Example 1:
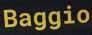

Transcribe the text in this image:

Baggio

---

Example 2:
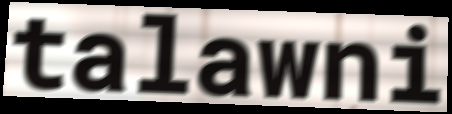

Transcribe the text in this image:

talawni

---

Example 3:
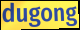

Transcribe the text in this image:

dugong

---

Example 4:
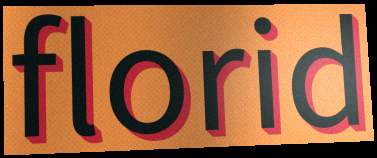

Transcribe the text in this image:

florid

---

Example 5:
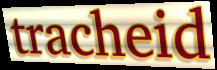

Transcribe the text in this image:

tracheid